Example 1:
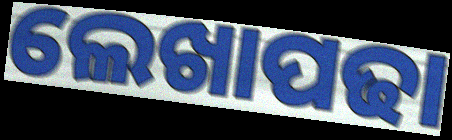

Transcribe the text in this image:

ଲେଖାପଢା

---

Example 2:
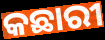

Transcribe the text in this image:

କଛାରୀ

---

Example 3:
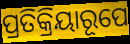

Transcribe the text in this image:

ପ୍ରତିକ୍ରିୟାରୂପେ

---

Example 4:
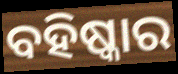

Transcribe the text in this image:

ବହିଷ୍କାର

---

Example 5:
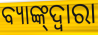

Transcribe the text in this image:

ବ୍ୟାଙ୍କ୍‌ଦ୍ୱାରା